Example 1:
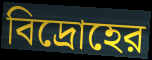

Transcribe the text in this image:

বিদ্রোহের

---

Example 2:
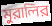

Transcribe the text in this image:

মুরালির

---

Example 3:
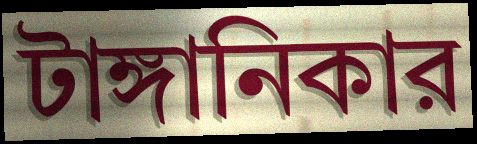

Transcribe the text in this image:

টাঙ্গানিকার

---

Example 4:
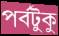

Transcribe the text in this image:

পর্বটুকু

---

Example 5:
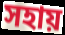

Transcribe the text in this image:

সহায়